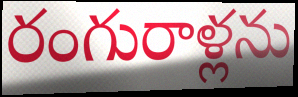
రంగురాళ్లను